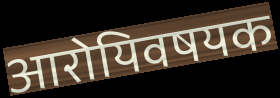
आरोयिवषयक